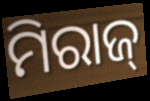
ମିରାଜ୍